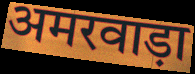
अमरवाड़ा